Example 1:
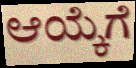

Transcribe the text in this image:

ಆಯ್ಕೆಗೆ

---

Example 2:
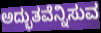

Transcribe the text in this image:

ಅದ್ಭುತವೆನ್ನಿಸುವ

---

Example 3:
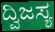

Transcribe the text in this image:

ದ್ವಿಜಸ್ಯ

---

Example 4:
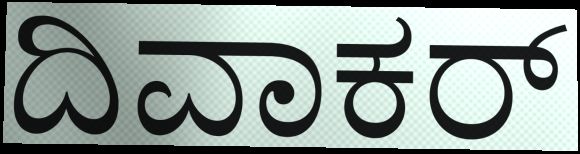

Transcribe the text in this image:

ದಿವಾಕರ್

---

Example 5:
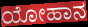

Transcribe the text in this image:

ಯೋಹಾನ